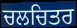
ਚਲਚਿਤਰ